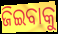
ଜିଇବାକୁ